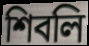
শিবলি